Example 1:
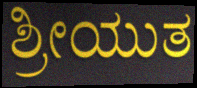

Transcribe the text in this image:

ಶ್ರೀಯುತ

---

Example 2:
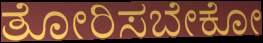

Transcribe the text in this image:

ತೋರಿಸಬೇಕೋ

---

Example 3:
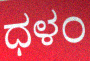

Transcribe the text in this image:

ಧಳಂ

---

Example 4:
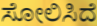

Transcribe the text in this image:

ಸೋಲಿಸಿದೆ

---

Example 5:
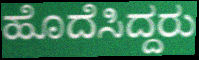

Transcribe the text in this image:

ಹೊದೆಸಿದ್ದರು